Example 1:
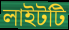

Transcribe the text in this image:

লাইটটি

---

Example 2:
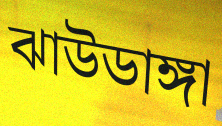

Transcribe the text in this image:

ঝাউডাঙ্গা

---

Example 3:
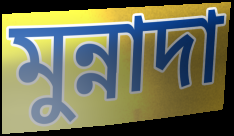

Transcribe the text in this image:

মুন্নাদা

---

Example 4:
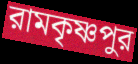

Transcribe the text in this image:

রামকৃষ্ণপুর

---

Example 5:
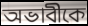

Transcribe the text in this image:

অভাবীকে